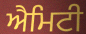
ਐਮਿਟੀ